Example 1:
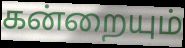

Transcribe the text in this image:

கன்றையும்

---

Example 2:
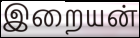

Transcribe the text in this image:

இறையன்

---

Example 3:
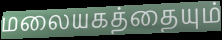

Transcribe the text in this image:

மலையகத்தையும்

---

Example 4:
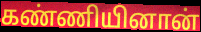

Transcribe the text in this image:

கண்ணியினான்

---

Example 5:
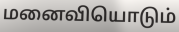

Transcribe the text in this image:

மனைவியொடும்